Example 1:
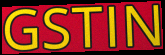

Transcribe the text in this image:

GSTIN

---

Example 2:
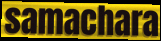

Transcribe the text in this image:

samachara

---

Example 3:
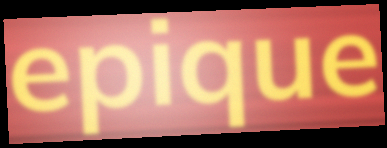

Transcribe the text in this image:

epique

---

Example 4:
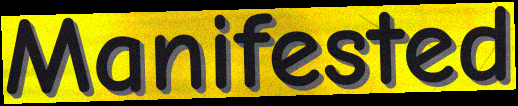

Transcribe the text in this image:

Manifested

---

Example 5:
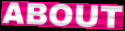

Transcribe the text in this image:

ABOUT